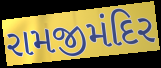
રામજીમંદિર